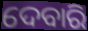
ଦେବାରି